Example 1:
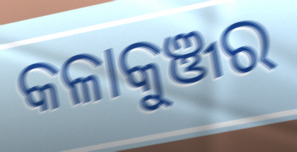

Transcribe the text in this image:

କଳାକୁଞ୍ଜର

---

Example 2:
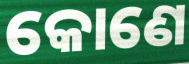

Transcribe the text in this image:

କୋଣେ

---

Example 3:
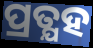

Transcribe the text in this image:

ପ୍ରତ୍ଯହ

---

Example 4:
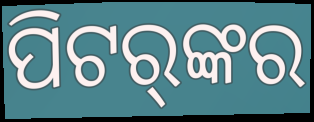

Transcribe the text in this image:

ପିଟର୍‌ଙ୍କର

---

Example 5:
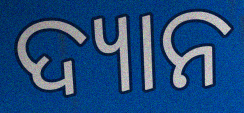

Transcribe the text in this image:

ଦ୍ୟାନ